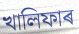
খালিফাৰ